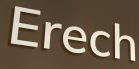
Erech